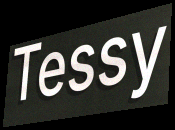
Tessy